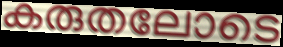
കരുതലോടെ